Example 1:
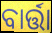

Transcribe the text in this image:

ବାର୍ତ୍ତା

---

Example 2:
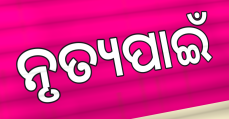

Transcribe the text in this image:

ନୃତ୍ୟପାଇଁ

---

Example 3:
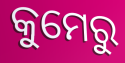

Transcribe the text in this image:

କୁମେରୁ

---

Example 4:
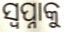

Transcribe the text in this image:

ସ୍ୱପ୍ନାକୁ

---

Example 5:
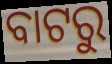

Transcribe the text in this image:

ବାଟରୁ